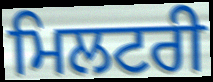
ਮਿਲਟਰੀ